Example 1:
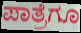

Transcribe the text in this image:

ಪಾತ್ರೆಗೂ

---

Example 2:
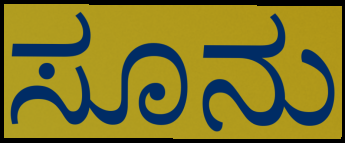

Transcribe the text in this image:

ಸೂನು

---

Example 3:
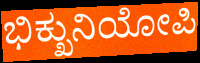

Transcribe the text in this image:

ಭಿಕ್ಖುನಿಯೋಪಿ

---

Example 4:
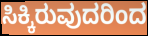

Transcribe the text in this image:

ಸಿಕ್ಕಿರುವುದರಿಂದ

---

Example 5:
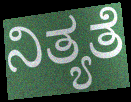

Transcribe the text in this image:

ನಿತ್ಯತೆ